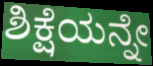
ಶಿಕ್ಷೆಯನ್ನೇ